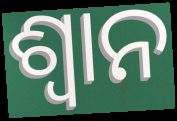
ଶ୍ୱାନ